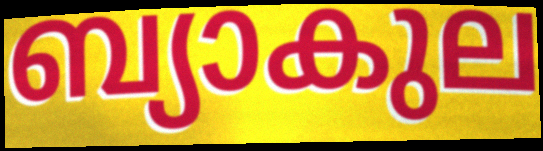
ബ്യാകുല